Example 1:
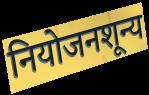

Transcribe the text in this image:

नियोजनशून्य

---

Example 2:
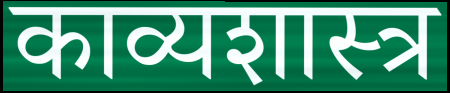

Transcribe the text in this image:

काव्यशास्त्र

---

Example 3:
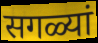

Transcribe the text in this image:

सगळ्यां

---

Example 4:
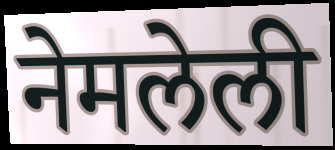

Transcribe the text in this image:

नेमलेली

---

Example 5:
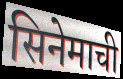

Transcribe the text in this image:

सिनेमाची